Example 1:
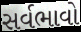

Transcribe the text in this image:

સર્વભાવો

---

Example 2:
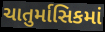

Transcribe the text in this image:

ચાતુર્માસિકમાં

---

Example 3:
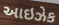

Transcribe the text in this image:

આઇઝેક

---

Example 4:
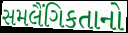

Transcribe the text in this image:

સમલૈંગિકતાનો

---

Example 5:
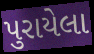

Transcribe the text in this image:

પુરાયેલા